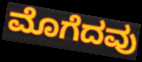
ಮೊಗೆದವು